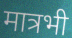
मात्रभी